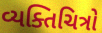
વ્યક્તિચિત્રો